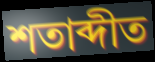
শতাব্দীত